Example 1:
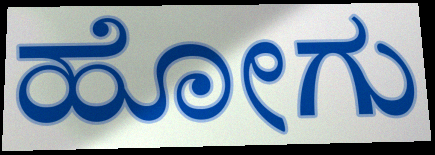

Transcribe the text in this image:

ಹೋಗು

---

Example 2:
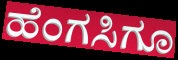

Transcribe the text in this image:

ಹೆಂಗಸಿಗೂ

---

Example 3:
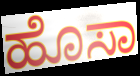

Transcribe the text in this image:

ಹೊಸಾ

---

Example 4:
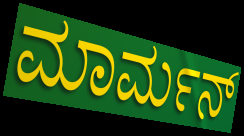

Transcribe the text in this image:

ಮಾರ್ಮನ್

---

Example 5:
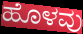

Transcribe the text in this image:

ಹೊಳವು